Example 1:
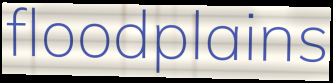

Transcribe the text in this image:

floodplains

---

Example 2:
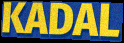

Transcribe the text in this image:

KADAL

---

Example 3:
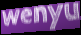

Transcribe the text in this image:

wenyu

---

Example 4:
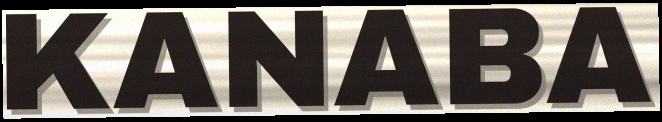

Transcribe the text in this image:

KANABA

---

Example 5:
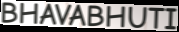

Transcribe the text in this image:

BHAVABHUTI